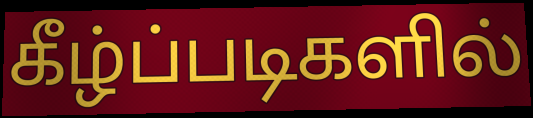
கீழ்ப்படிகளில்